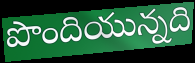
పొందియున్నది